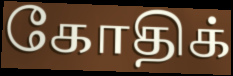
கோதிக்